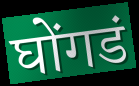
घोंगडं